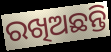
ରଖିଅଛନ୍ତି